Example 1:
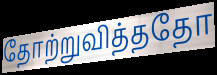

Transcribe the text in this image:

தோற்றுவித்ததோ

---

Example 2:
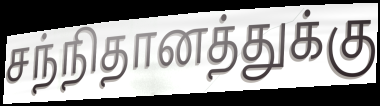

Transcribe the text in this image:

சந்நிதானத்துக்கு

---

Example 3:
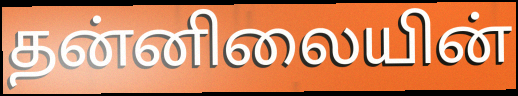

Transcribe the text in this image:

தன்னிலையின்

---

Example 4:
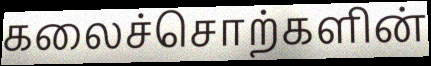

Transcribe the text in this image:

கலைச்சொற்களின்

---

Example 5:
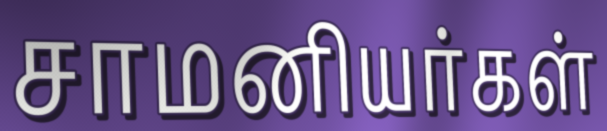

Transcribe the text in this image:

சாமனியர்கள்